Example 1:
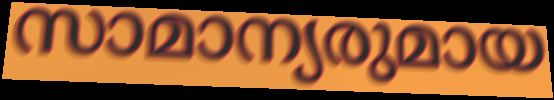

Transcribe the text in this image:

സാമാന്യരുമായ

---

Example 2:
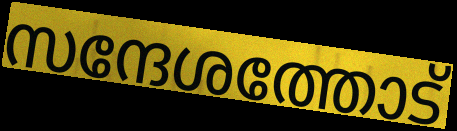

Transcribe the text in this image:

സന്ദേശത്തോട്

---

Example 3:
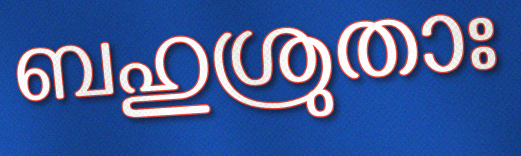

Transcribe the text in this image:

ബഹുശ്രുതാഃ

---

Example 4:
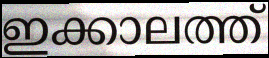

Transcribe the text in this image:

ഇക്കാലത്ത്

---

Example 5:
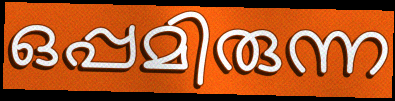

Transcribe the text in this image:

ഒപ്പമിരുന്ന